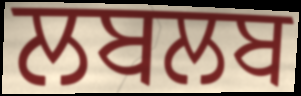
ਲਬਲਬ